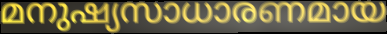
മനുഷ്യസാധാരണമായ